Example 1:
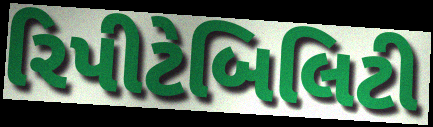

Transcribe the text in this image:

રિપીટેબિલિટી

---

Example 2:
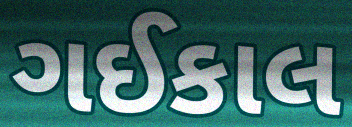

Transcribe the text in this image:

ગઈકાલ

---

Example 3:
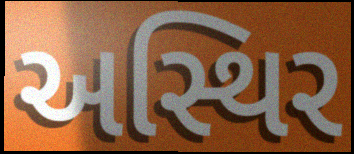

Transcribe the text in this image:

અસ્થિર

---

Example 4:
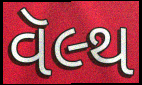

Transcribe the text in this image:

વૅલ્થ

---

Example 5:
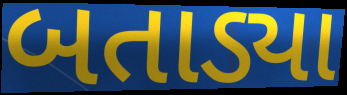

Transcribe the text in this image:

બતાડ્યા